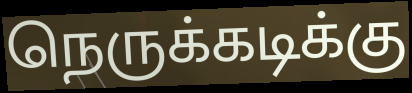
நெருக்கடிக்கு